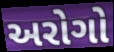
અરોગો